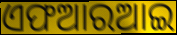
ଏଫଆରଆଇ